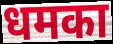
धमका